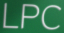
LPC